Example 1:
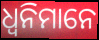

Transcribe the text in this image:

ଧ୍ୱନିମାନେ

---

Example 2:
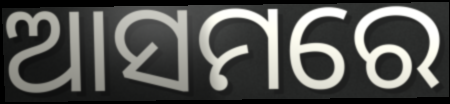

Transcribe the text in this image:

ଆସମରେ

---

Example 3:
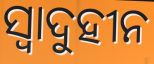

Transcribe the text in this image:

ସ୍ୱାଦୁହୀନ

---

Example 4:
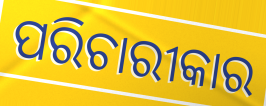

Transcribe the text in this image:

ପରିଚାରୀକାର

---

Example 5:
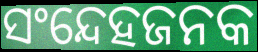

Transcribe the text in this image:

ସଂନ୍ଦେହଜନକ